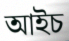
আইচ